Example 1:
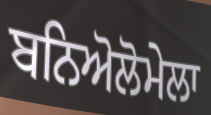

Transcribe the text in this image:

ਬਨਿਅੋਲੋਮੇਲਾ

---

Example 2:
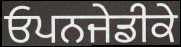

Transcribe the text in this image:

ਓਪਨਜੇਡੀਕੇ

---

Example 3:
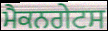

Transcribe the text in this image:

ਮੈਕਨਗੇਟਸ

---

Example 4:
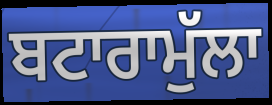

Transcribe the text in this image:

ਬਟਾਰਾਮੁੱਲਾ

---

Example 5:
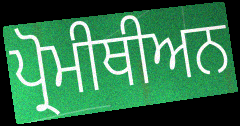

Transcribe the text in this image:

ਪ੍ਰੋਮੀਥੀਅਨ